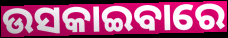
ଉସକାଇବାରେ